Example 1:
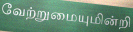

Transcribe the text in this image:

வேற்றுமையுமின்றி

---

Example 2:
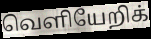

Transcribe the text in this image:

வெளியேறிக்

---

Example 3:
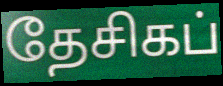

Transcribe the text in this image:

தேசிகப்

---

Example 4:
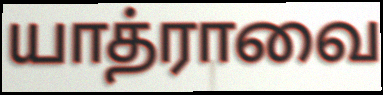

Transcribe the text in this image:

யாத்ராவை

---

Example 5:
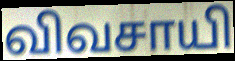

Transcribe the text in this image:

விவசாயி